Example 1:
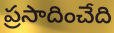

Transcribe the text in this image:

ప్రసాదించేది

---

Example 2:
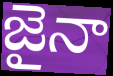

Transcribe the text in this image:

జైనా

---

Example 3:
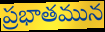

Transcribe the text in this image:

ప్రభాతమున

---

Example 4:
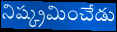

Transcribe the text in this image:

నిష్క్రమించేడు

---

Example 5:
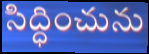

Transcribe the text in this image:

సిద్ధించును